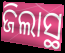
ଜିଲାସ୍ଥ